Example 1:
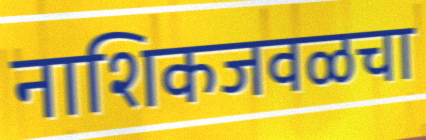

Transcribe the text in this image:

नाशिकजवळचा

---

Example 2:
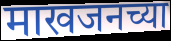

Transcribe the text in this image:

माखजनच्या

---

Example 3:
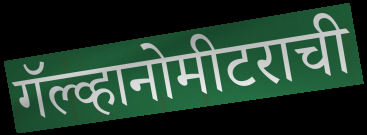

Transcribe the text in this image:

गॅल्व्हानोमीटराची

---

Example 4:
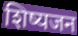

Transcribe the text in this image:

शिष्यजन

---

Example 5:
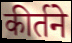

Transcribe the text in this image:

कीर्तने